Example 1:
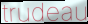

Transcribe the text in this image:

trudeau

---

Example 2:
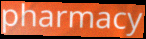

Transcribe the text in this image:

pharmacy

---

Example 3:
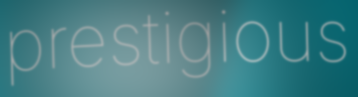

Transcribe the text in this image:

prestigious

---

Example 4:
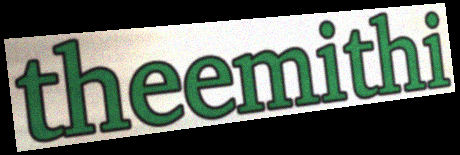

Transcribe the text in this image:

theemithi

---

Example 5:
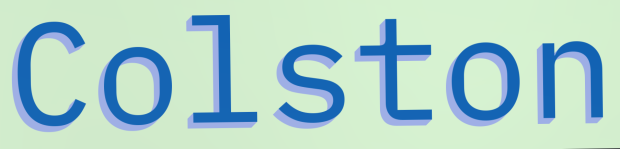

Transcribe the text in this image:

Colston